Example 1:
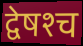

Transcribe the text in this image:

द्वेषश्च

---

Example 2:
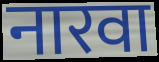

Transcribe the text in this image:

नारवा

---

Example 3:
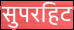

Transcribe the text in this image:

सुपरहिट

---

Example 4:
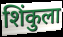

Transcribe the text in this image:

शिंकुला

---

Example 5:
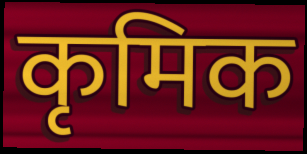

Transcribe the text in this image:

कृमिक